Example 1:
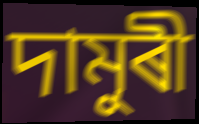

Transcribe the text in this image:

দামুৰী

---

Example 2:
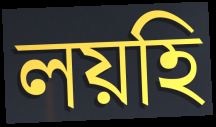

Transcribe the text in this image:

লয়হি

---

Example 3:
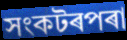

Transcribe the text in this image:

সংকটৰপৰা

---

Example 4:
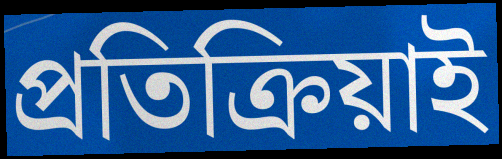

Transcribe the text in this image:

প্ৰতিক্ৰিয়াই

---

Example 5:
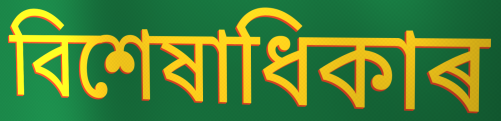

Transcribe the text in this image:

বিশেষাধিকাৰ